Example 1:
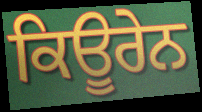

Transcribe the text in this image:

ਕਿਊਰੇਨ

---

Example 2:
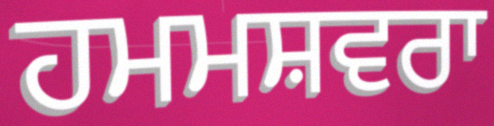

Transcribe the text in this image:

ਹਮਮਸ਼ਵਰਾ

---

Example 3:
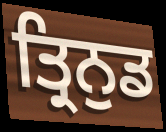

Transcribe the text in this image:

ਤ੍ਰਿਨੁਡ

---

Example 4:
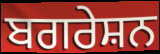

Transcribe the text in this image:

ਬਗਰੇਸ਼ਨ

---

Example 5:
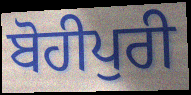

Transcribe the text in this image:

ਬੋਹੀਪੁਰੀ